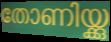
തോണിയ്ക്കു